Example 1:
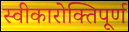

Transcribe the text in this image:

स्वीकारोक्तिपूर्ण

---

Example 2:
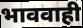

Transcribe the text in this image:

भाववाही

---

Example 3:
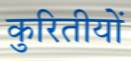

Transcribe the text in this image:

कुरितीयों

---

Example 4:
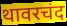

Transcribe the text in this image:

थावरचंद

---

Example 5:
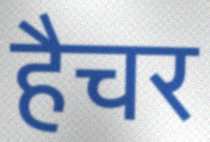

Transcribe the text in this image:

हैचर